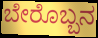
ಬೇರೊಬ್ಬನ